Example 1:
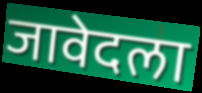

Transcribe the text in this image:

जावेदला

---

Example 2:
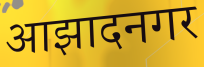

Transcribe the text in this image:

आझादनगर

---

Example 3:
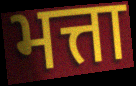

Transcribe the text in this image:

भत्ता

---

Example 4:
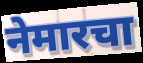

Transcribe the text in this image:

नेमारचा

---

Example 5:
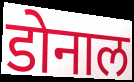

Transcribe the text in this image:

डोनाल